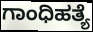
ಗಾಂಧಿಹತ್ಯೆ